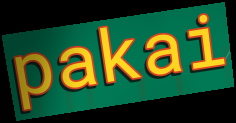
pakai